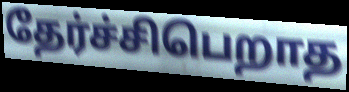
தேர்ச்சிபெறாத